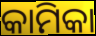
କାମିକା